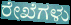
ರೇಖೆಗಳು